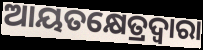
ଆୟତକ୍ଷେତ୍ରଦ୍ଵାରା